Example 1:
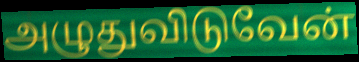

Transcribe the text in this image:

அழுதுவிடுவேன்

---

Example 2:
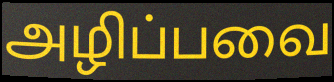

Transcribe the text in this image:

அழிப்பவை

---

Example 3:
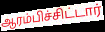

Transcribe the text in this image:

ஆரம்பிச்சிட்டார்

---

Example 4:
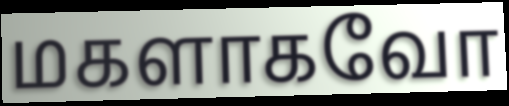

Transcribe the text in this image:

மகளாகவோ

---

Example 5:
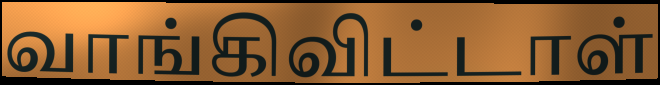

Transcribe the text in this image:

வாங்கிவிட்டாள்